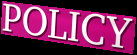
POLICY